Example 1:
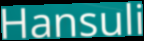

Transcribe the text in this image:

Hansuli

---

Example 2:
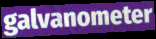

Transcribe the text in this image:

galvanometer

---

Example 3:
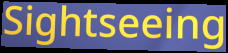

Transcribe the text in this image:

Sightseeing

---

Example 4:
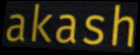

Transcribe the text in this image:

akash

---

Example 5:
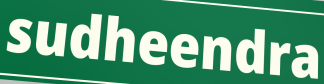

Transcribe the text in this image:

sudheendra